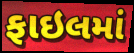
ફાઇલમાં